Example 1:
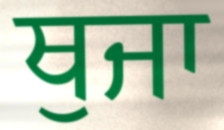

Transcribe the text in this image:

ਥੁਜਾ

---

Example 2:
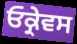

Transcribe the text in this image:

ਓਕ੍ਰੇਵਸ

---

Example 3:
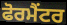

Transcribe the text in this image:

ਫੋਰਮੈਂਟਰ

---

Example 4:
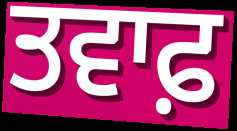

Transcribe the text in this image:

ਤਵਾਫ਼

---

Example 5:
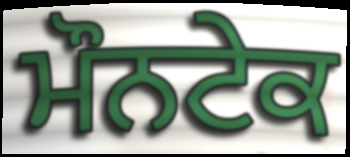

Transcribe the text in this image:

ਮੌਨਟੇਕ